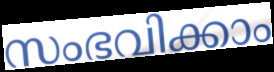
സംഭവിക്കാം